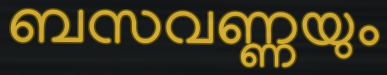
ബസവണ്ണയും